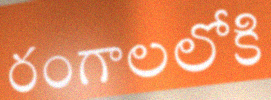
రంగాలలోకి